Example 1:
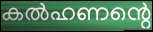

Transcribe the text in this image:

കൽഹണന്റെ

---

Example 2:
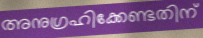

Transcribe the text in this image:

അനുഗ്രഹിക്കേണ്ടതിന്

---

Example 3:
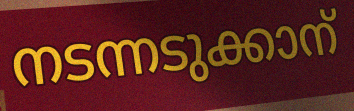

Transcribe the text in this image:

നടന്നടുക്കാന്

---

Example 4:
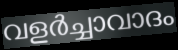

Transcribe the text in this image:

വളർച്ചാവാദം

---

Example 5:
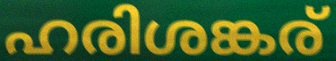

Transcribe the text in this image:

ഹരിശങ്കര്